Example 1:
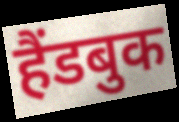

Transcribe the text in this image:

हैंडबुक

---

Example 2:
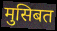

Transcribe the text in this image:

मुसिबत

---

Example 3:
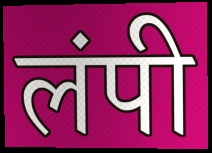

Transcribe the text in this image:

लंपी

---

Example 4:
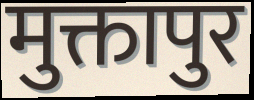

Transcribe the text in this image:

मुक्तापुर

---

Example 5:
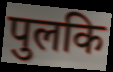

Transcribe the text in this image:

पुलकि